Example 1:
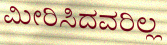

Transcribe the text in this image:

ಮೀರಿಸಿದವರಿಲ್ಲ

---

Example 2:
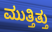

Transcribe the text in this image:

ಮುತ್ತಿತ್ತು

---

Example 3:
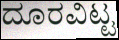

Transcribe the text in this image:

ದೂರವಿಟ್ಟ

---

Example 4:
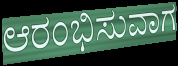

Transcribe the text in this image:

ಆರಂಭಿಸುವಾಗ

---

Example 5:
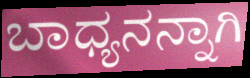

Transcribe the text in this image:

ಬಾಧ್ಯನನ್ನಾಗಿ